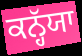
ਕਨ੍ਹੱਯਾ